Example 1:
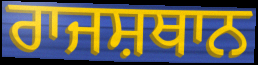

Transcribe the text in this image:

ਰਾਜਸ਼ਥਾਨ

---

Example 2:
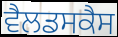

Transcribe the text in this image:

ਵੈਲਡਸਕੈਸ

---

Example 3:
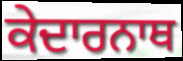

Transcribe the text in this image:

ਕੇਦਾਰਨਾਥ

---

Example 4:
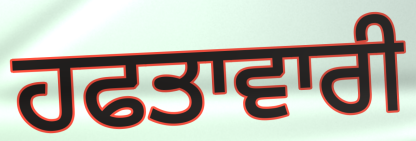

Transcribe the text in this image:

ਹਫਤਾਵਾਰੀ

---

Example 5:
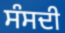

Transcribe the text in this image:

ਸੰਸਦੀ